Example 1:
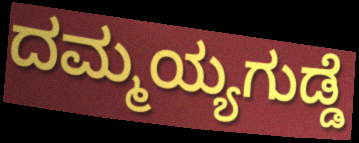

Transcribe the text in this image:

ದಮ್ಮಯ್ಯಗುಡ್ಡೆ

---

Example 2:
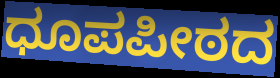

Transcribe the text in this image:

ಧೂಪಪೀಠದ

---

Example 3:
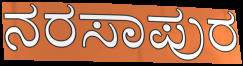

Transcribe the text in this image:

ನರಸಾಪುರ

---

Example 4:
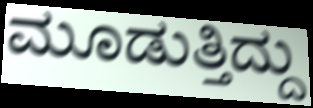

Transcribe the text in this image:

ಮೂಡುತ್ತಿದ್ದು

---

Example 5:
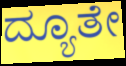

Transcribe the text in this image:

ದ್ಯೂತೇ